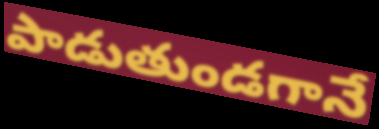
పాడుతుండగానే